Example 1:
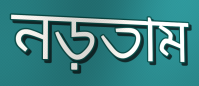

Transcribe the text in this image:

নড়তাম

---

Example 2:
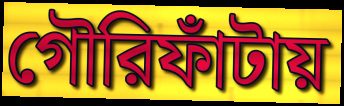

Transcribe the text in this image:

গৌরিফাঁটায়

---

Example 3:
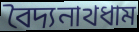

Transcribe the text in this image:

বৈদ্যনাথধাম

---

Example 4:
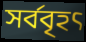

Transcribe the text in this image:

সর্ববৃহৎ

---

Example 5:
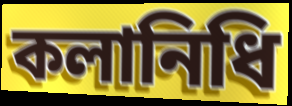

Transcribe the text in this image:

কলানিধি